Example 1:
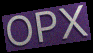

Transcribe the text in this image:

OPX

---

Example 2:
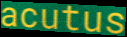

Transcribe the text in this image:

acutus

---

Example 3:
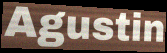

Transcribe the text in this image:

Agustin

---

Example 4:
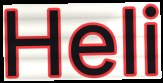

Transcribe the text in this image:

Heli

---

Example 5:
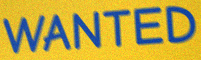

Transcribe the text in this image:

WANTED